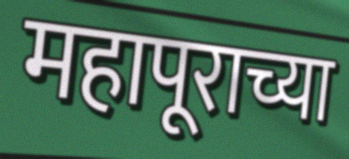
महापूराच्या